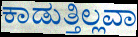
ಕಾಡುತ್ತಿಲ್ಲವಾ